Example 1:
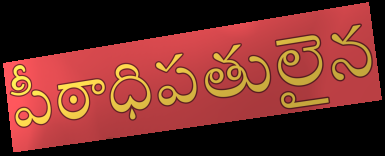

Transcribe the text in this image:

పీఠాధిపతులైన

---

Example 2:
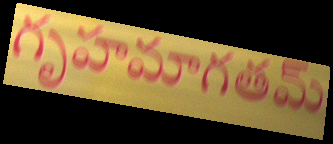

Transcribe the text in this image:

గృహమాగతమ్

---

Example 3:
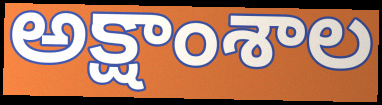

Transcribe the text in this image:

అక్షాంశాల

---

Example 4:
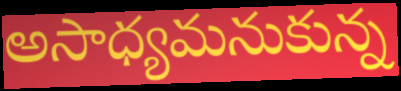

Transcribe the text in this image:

అసాధ్యమనుకున్న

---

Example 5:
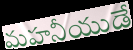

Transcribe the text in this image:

మహనీయుడే